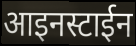
आइनस्टाईन